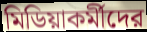
মিডিয়াকর্মীদের